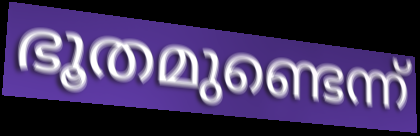
ഭൂതമുണ്ടെന്ന്